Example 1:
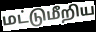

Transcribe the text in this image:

மட்டுமீறிய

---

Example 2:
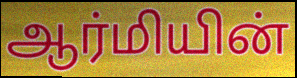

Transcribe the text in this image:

ஆர்மியின்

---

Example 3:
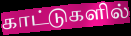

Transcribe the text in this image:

காட்டுகளில்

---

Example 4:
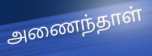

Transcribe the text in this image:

அணைந்தாள்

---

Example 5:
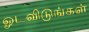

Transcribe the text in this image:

ஓடவிடுங்கள்